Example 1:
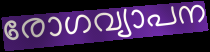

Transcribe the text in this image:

രോഗവ്യാപന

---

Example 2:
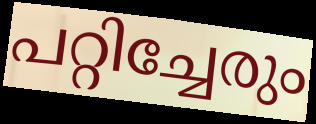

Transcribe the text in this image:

പറ്റിച്ചേരും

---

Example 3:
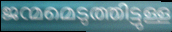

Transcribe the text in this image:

ജന്മമെടുത്തിട്ടുള്ള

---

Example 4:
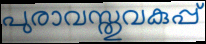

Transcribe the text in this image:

പുരാവസ്തുവകുപ്പ്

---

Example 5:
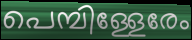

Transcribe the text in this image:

പെമ്പിള്ളേരേം